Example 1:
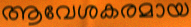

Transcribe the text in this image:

ആവേശകരമായ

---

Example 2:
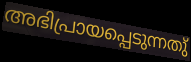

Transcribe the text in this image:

അഭിപ്രായപ്പെടുന്നതു്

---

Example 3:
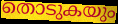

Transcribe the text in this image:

തൊടുകയും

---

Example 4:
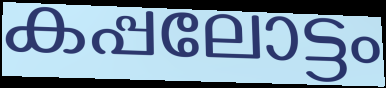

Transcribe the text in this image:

കപ്പലോട്ടം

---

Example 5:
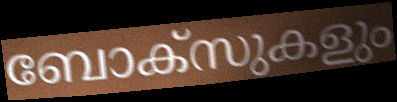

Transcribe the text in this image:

ബോക്സുകളും